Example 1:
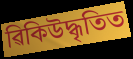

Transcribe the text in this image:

ৱিকিউদ্ধৃতিত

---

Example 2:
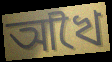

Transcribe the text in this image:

আখৈ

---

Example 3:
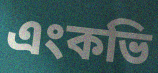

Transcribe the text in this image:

এংকভি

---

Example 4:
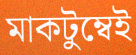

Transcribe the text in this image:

মাকটুম্বেই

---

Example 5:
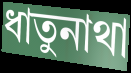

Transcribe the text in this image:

ধাতুনাথা